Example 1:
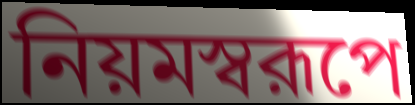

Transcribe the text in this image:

নিয়মস্বরূপে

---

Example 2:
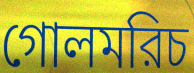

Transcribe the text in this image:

গোলমরিচ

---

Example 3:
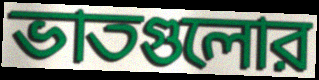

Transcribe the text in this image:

ভাতগুলোর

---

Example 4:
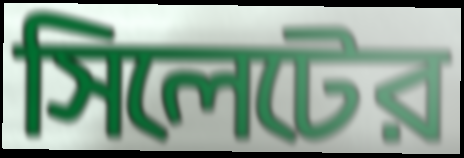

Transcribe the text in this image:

সিলেটের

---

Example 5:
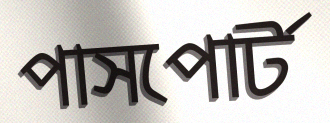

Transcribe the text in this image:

পাসপোর্ট